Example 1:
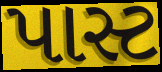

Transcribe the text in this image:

પાસ્ટ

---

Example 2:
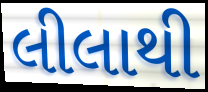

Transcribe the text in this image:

લીલાથી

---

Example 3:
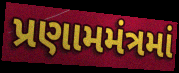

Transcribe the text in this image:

પ્રણામમંત્રમાં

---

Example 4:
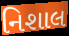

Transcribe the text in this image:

નિશાલ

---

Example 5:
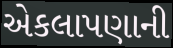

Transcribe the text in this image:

એકલાપણાની